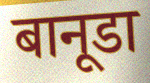
बानूडा